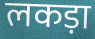
लकड़ा